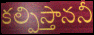
కల్పిస్తాననీ